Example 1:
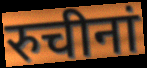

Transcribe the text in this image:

रुचीनां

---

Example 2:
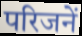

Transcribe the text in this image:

परिजनें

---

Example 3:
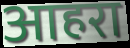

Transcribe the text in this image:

आहरा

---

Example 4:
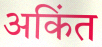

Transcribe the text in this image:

अकिंत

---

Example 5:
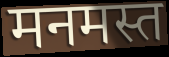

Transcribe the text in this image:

मनमस्त